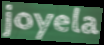
joyela